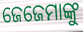
ଜେଜେମାଙ୍କୁ